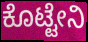
ಕೊಟ್ಟೇನಿ